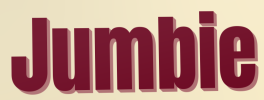
Jumbie